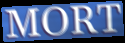
MORT